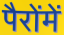
पैरोंमें